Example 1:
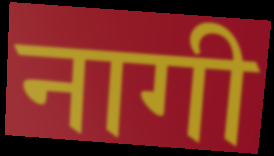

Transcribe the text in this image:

नागी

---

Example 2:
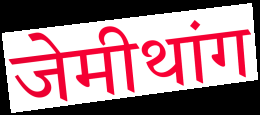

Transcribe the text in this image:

जेमीथांग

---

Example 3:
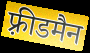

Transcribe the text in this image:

फ़्रीडमैन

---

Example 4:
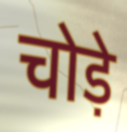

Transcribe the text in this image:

चोड़े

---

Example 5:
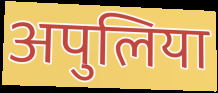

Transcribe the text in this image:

अपुलिया